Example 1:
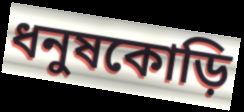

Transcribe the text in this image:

ধনুষকোড়ি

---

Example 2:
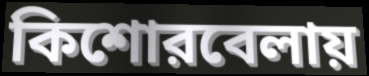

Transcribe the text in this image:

কিশোরবেলায়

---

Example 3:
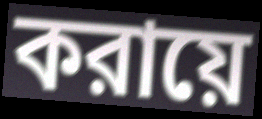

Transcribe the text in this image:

করায়ে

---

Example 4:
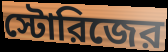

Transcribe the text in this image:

স্টোরিজের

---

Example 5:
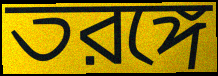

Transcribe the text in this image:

তরঙ্গে